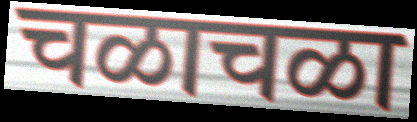
चळाचळा